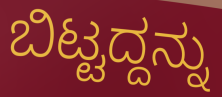
ಬಿಟ್ಟದ್ದನ್ನು